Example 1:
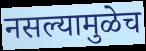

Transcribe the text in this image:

नसल्यामुळेच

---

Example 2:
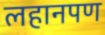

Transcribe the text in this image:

लहानपण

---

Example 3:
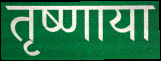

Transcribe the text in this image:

तृष्णाया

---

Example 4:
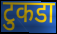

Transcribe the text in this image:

टुकडा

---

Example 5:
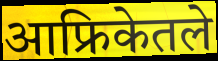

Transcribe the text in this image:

आफ्रिकेतले